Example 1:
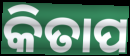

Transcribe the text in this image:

କିତାପ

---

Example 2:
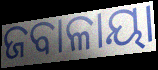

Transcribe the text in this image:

ଜବାଳାୟା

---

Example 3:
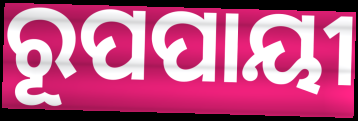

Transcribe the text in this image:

ରୂପପାୟୀ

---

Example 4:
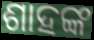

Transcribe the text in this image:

ଶାହଙ୍କ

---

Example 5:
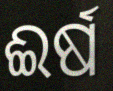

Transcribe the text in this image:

ଈର୍ଷ